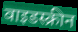
वाइडस्क्रीन